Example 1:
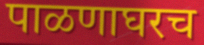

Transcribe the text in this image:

पाळणाघरच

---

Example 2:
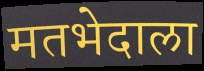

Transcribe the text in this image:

मतभेदाला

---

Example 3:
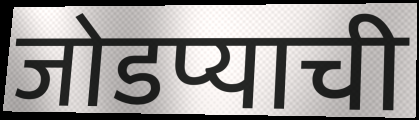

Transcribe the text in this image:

जोडप्याची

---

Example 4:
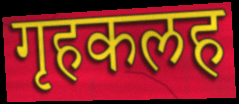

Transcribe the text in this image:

गृहकलह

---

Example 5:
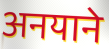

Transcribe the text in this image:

अनयाने